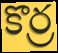
కొర్ర